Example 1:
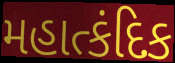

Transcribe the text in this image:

મહાત્કંદિક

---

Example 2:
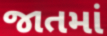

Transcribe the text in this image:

જાતમાં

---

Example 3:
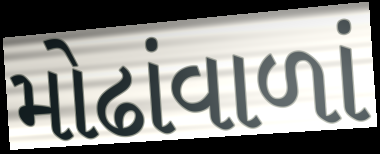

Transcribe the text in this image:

મોઢાંવાળાં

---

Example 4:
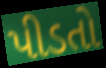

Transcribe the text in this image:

પીડતો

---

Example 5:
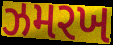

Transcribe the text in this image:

ઝમરખ